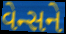
વેન્સને